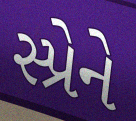
સ્પ્રેને